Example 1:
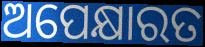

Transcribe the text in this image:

ଅପେକ୍ଷାରତ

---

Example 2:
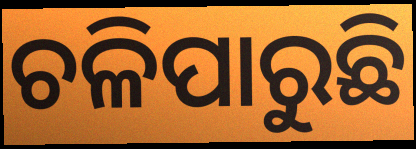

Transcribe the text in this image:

ଚଳିପାରୁଛି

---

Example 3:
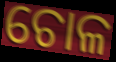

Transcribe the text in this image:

ଚୋଳ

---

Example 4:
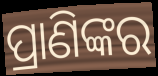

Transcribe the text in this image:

ପ୍ରାଣିଙ୍କର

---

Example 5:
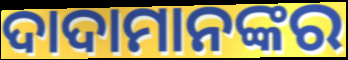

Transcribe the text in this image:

ଦାଦାମାନଙ୍କର